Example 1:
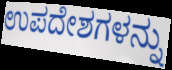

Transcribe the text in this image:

ಉಪದೇಶಗಳನ್ನು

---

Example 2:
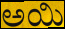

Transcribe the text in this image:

ಅಯಿ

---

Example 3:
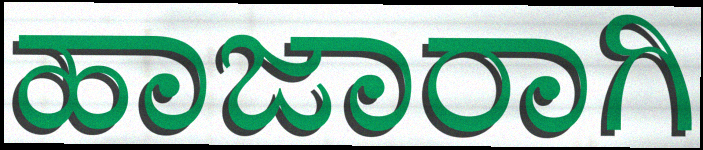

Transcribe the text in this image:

ಹಾಜಾರಾಗಿ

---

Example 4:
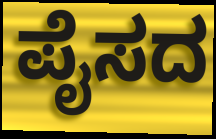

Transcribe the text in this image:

ಪೈಸದ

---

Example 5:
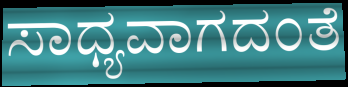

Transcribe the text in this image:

ಸಾಧ್ಯವಾಗದಂತೆ